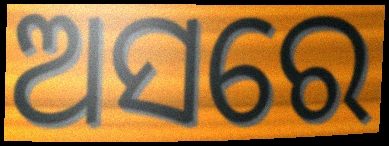
ଅସରେ